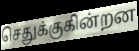
செதுக்குகின்றன